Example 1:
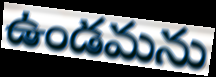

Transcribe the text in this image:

ఉండమను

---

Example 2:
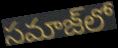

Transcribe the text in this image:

సమాజ్‌లో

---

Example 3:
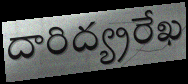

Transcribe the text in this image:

దారిద్య్రరేఖ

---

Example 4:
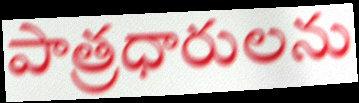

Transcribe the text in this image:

పాత్రధారులను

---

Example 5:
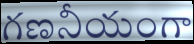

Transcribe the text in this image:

గణనీయంగా